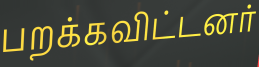
பறக்கவிட்டனர்